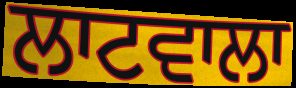
ਲਾਟਵਾਲਾ